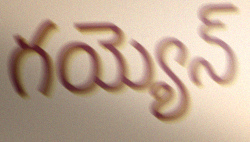
గయ్యెన్